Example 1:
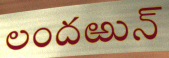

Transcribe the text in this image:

లందఱున్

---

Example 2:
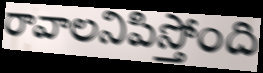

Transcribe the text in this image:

రావాలనిపిస్తోంది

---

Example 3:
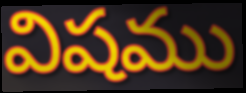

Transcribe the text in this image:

విషము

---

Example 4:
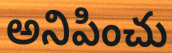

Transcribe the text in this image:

అనిపించు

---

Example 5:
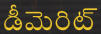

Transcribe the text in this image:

డీమెరిట్